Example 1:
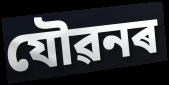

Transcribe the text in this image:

যৌৱনৰ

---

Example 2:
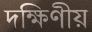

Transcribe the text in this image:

দক্ষিণীয়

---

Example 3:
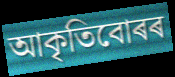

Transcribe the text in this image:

আকৃতিবোৰৰ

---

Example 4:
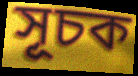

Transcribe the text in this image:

সূচক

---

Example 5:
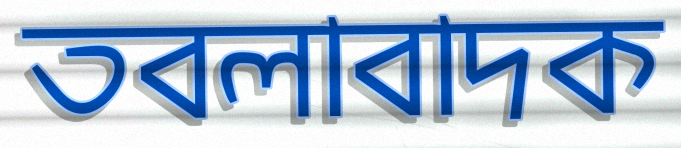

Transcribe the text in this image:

তবলাবাদক